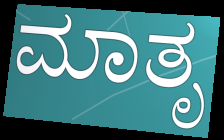
ಮಾತೃ